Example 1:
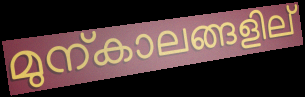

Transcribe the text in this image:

മുന്കാലങ്ങളില്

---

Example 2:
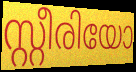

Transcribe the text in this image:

സ്റ്റീരിയോ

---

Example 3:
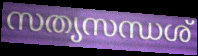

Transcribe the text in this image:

സത്യസന്ധശ്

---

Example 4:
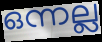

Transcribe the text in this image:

ഒന്നല്ല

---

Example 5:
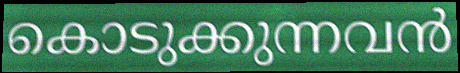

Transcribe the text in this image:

കൊടുക്കുന്നവൻ